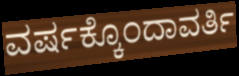
ವರ್ಷಕ್ಕೊಂದಾವರ್ತಿ